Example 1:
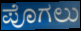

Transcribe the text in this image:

ಪೊಗಲು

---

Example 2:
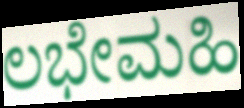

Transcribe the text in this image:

ಲಭೇಮಹಿ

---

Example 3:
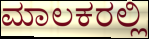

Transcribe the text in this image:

ಮಾಲಕರಲ್ಲಿ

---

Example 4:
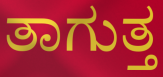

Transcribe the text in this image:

ತಾಗುತ್ತ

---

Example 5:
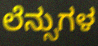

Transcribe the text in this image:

ಲೆನ್ಸುಗಳ